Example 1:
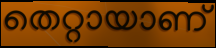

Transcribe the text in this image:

തെറ്റായാണ്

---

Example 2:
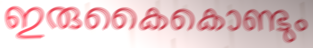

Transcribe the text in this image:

ഇരുകൈകൊണ്ടും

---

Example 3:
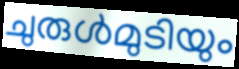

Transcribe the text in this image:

ചുരുൾമുടിയും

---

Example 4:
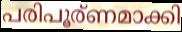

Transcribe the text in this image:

പരിപൂര്ണമാക്കി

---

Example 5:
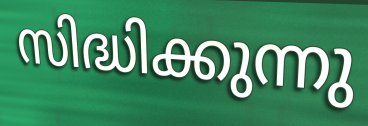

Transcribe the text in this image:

സിദ്ധിക്കുന്നു